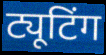
ट्यूटिंग